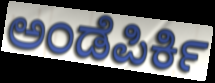
ಅಂಡೆಪಿರ್ಕಿ